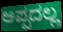
ಅಪ್ಪದಲ್ಲ